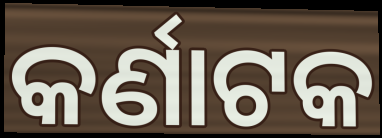
କର୍ଣାଟକ